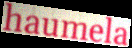
haumela